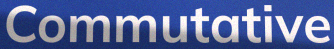
Commutative